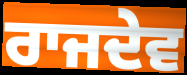
ਰਾਜਦੇਵ